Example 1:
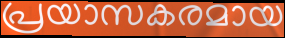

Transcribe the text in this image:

പ്രയാസകരമായ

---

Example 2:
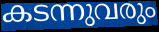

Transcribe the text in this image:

കടന്നുവരും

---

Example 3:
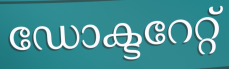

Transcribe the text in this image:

ഡോക്ടറേറ്റ്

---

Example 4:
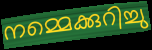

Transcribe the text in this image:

നമ്മെക്കുറിച്ചു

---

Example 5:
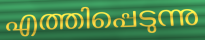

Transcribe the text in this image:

എത്തിപ്പെടുന്നു